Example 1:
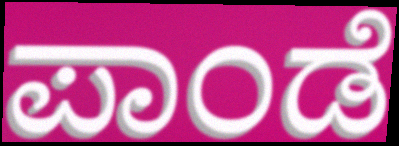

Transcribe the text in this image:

ಪಾಂಡೆ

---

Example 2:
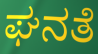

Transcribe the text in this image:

ಘನತೆ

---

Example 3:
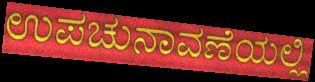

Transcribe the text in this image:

ಉಪಚುನಾವಣೆಯಲ್ಲಿ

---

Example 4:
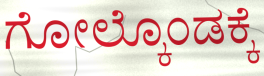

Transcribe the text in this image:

ಗೋಲ್ಕೊಂಡಕ್ಕೆ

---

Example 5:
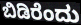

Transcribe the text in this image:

ಬಿಡಿರೆಂದು